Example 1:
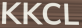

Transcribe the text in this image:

KKCL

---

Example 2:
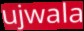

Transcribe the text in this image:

ujwala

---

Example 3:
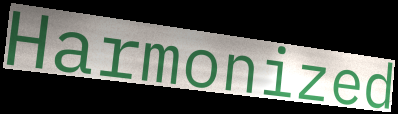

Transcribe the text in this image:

Harmonized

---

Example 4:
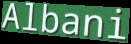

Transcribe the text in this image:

Albani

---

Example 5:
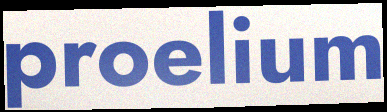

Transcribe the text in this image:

proelium